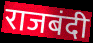
राजबंदी